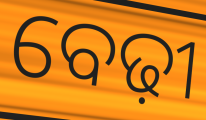
ବେଢ଼ୀ